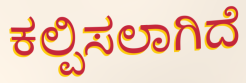
ಕಲ್ಪಿಸಲಾಗಿದೆ